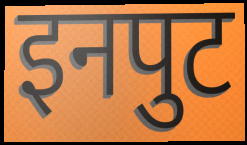
इनपुट